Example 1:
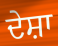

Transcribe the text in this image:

ਦੇਸ਼ਾ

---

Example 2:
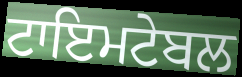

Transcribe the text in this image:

ਟਾਇਮਟੇਬਲ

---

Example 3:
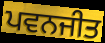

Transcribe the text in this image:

ਪਵਨਜੀਤ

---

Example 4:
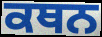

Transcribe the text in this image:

ਕਥਨ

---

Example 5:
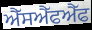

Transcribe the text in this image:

ਐੱਸਐੱਫਐੱਫ